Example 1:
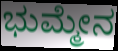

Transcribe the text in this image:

ಭುಮ್ಮೇನ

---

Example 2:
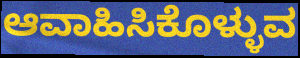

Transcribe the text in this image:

ಆವಾಹಿಸಿಕೊಳ್ಳುವ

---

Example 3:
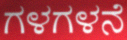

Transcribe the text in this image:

ಗಳಗಳನೆ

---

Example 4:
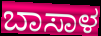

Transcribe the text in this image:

ಬಾಸಾಳ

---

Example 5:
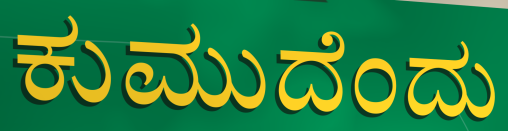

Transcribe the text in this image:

ಕುಮುದೆಂದು